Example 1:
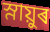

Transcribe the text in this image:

স্নায়ুৰ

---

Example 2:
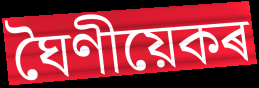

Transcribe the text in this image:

ঘৈণীয়েকৰ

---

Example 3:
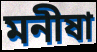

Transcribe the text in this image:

মনীষা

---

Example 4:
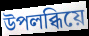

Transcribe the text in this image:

উপলব্ধিয়ে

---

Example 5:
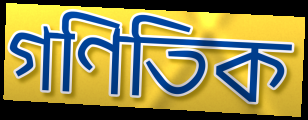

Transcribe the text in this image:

গণিতিক